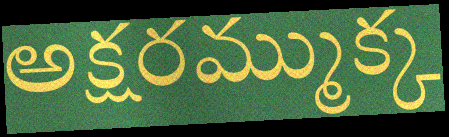
అక్షరమ్ముక్క